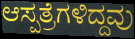
ಆಸ್ಪತ್ರೆಗಳಿದ್ದವು